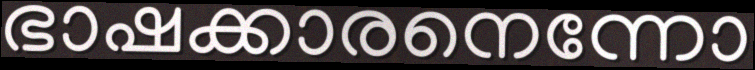
ഭാഷക്കാരനെന്നോ